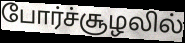
போர்ச்சூழலில்